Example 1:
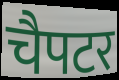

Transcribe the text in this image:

चैपटर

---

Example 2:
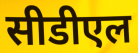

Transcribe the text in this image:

सीडीएल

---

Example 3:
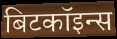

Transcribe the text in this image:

बिटकॉइन्स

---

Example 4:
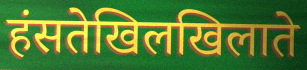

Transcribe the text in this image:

हंसतेखिलखिलाते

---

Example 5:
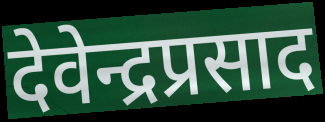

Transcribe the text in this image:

देवेन्द्रप्रसाद